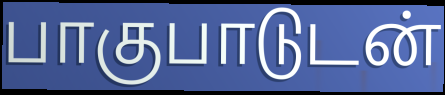
பாகுபாடுடன்